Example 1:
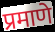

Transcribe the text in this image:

प्रमाणे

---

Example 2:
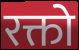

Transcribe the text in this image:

रक्तो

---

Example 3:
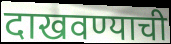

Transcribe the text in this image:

दाखवण्याची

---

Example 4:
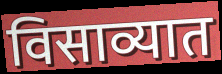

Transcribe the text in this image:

विसाव्यात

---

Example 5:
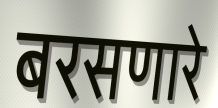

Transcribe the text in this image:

बरसणारे